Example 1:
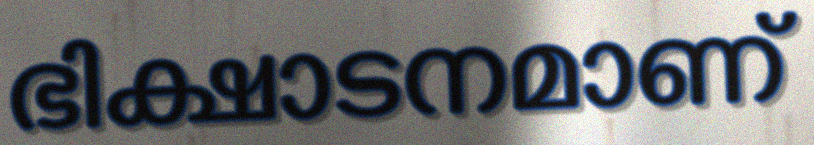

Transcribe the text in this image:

ഭിക്ഷാടനമാണ്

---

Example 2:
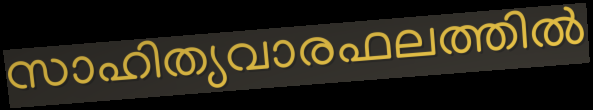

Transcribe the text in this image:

സാഹിത്യവാരഫലത്തിൽ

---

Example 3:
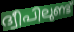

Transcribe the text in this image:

ദ്വീപിലുണ്ട്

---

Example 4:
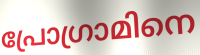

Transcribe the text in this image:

പ്രോഗ്രാമിനെ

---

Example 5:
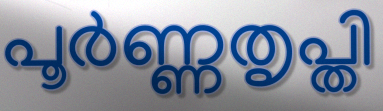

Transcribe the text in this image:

പൂർണ്ണതൃപ്തി